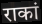
राकां